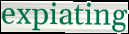
expiating